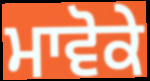
ਮਾਵੋਕੇ